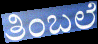
ತಿಂಬಲೆ